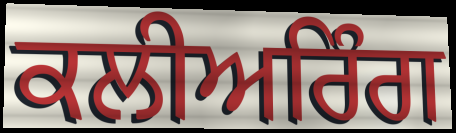
ਕਲੀਅਰਿੰਗ